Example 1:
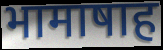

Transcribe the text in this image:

भामाषाह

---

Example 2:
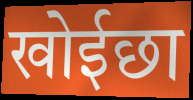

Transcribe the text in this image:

खोईछा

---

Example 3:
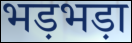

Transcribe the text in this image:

भड़भड़ा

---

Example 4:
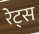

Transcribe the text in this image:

रेट्स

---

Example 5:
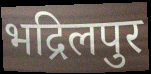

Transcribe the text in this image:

भद्रिलपुर